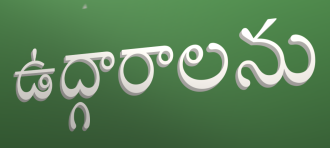
ఉద్గారాలను